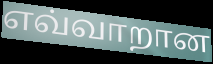
எவ்வாறான